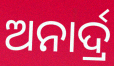
ଅନାର୍ଦ୍ର